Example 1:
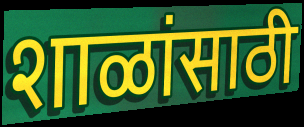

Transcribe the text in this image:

शाळांसाठी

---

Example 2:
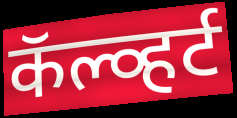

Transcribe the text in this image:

कॅल्व्हर्ट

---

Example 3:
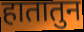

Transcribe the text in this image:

हातातुन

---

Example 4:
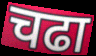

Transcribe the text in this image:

चढा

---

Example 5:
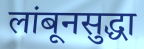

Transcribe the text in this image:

लांबूनसुद्धा